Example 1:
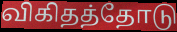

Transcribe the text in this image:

விகிதத்தோடு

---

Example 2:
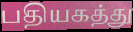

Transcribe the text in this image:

பதியகத்து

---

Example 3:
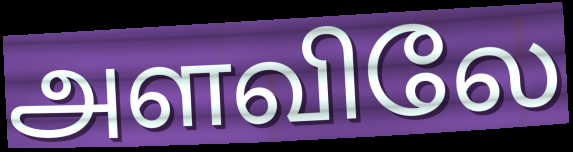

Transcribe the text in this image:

அளவிலே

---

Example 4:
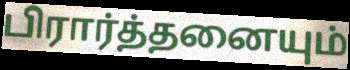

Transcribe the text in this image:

பிரார்த்தனையும்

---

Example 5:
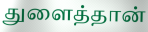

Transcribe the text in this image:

துளைத்தான்